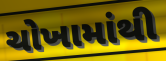
ચોખામાંથી